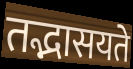
तद्भासयते